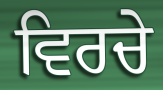
ਵਿਰਚੇ